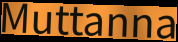
Muttanna